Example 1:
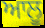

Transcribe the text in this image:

ਆਲੂ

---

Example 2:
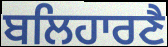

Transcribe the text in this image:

ਬਲਿਹਾਰਣੈ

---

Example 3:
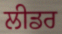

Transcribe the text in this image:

ਲੀਡਰ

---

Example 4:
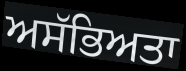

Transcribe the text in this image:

ਅਸੱਭਿਅਤਾ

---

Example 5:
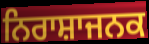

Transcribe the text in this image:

ਨਿਰਾਸ਼ਾਜਨਕ